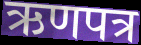
ऋणपत्र